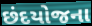
છંદયોજના